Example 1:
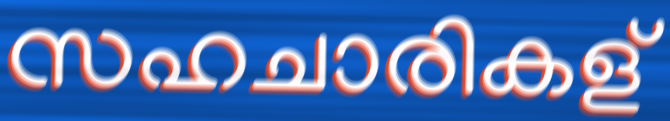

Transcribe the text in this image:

സഹചാരികള്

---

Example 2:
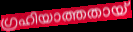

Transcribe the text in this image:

ഗ്രഹിയാത്തതായ്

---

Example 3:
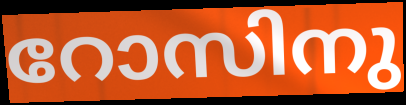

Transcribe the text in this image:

റോസിനു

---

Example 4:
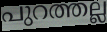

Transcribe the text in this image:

പുറത്തല്ല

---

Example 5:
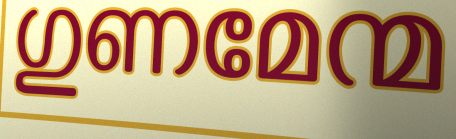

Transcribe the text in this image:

ഗുണമേന്മ